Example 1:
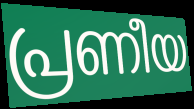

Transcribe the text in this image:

പ്രണീയ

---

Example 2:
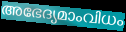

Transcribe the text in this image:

അഭേദ്യമാംവിധം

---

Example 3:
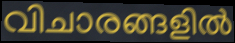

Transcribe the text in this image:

വിചാരങ്ങളിൽ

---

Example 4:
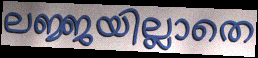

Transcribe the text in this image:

ലജ്ജയില്ലാതെ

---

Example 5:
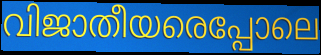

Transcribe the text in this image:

വിജാതീയരെപ്പോലെ